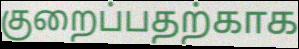
குறைப்பதற்காக